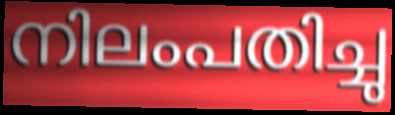
നിലംപതിച്ചു